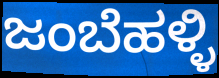
ಜಂಬೆಹಳ್ಳಿ